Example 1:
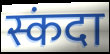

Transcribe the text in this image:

स्कंदा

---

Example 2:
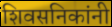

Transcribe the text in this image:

शिवसनिकांनी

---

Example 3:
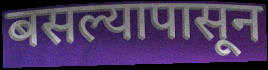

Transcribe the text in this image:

बसल्यापासून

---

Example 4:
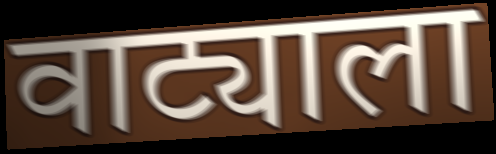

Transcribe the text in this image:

वाट्याला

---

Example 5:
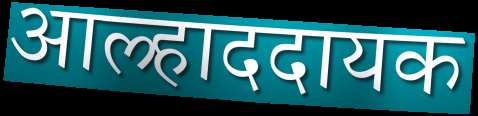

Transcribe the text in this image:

आल्हाददायक